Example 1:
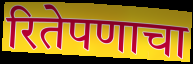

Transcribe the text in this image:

रितेपणाचा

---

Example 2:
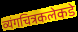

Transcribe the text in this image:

व्यंगचित्रकलेकडे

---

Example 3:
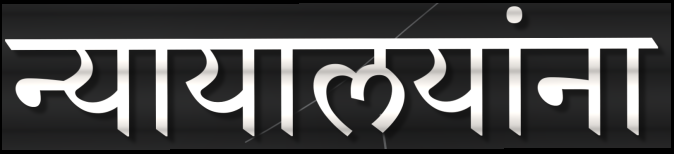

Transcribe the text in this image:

न्यायालयांना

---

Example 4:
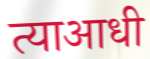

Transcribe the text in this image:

त्याआधी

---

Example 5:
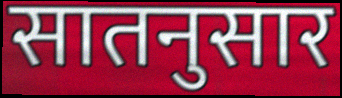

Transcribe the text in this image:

सातनुसार